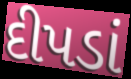
દીપડાં